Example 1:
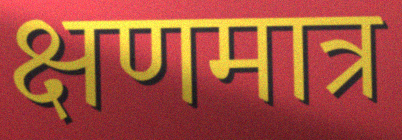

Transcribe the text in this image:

क्षणमात्र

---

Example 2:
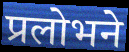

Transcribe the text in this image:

प्रलोभने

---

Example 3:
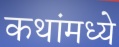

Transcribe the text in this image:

कथांमध्ये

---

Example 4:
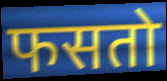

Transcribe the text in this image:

फसतो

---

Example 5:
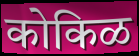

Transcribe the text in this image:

कोकिळ